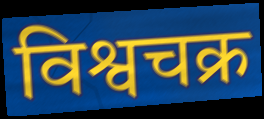
विश्वचक्र